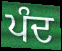
ਪੰਦ